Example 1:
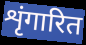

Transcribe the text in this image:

शृंगारित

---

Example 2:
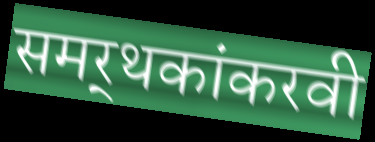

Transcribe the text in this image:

समर्थकांकरवी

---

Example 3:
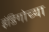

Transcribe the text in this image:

इंडिगोच्या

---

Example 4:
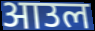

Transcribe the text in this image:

आउल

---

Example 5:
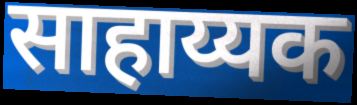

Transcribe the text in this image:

साहाय्यक